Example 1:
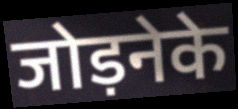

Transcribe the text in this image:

जोड़नेके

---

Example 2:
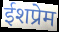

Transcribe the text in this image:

ईशप्रेम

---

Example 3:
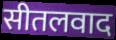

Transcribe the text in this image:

सीतलवाद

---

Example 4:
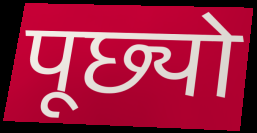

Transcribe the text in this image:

पूछ्यो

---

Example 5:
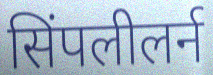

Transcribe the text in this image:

सिंपलीलर्न